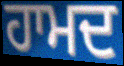
ਹਾਮਦ